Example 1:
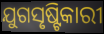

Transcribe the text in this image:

ଯୁଗସୃଷ୍ଟିକାରୀ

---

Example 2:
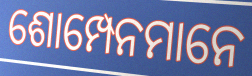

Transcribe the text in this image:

ଶୋମ୍ପେନମାନେ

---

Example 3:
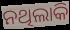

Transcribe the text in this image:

ନଥିଲାକି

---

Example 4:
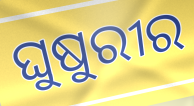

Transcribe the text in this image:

ଘୁଷୁରୀର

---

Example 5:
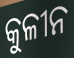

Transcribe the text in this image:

କୁଳୀନ